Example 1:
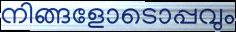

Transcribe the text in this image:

നിങ്ങളോടൊപ്പവും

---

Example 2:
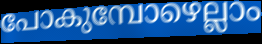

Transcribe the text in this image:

പോകുമ്പോഴെല്ലാം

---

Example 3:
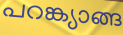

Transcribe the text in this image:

പറങ്ക്യാങ്ങ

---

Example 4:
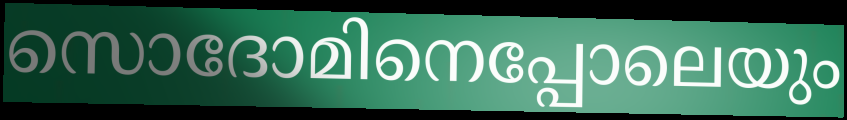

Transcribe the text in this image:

സൊദോമിനെപ്പോലെയും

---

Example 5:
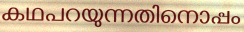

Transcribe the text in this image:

കഥപറയുന്നതിനൊപ്പം